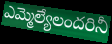
ఎమ్మెల్యేలందరినీ